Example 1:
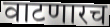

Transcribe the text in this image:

वाटणारच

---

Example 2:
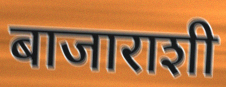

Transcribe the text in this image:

बाजाराशी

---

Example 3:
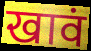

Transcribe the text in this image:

खावं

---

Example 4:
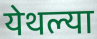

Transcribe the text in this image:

येथल्या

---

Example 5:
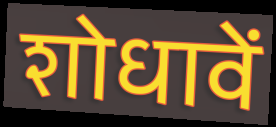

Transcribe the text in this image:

शोधावें